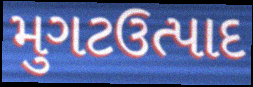
મુગટઉત્પાદ